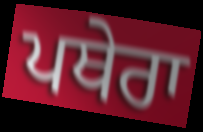
ਪਥੇਰਾ